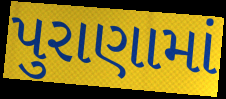
પુરાણામાં